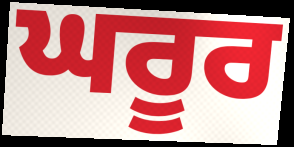
ਘਰੂਰ